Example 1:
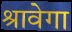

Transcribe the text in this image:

श्रावेगा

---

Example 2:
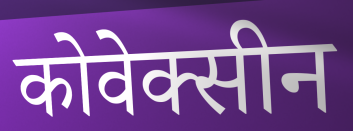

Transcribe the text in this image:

कोवेक्सीन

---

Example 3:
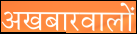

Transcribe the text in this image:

अखबारवालों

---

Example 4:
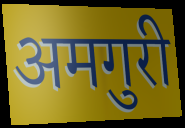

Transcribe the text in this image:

अमगुरी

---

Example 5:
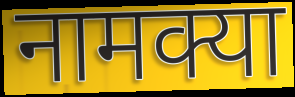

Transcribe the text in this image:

नामक्या